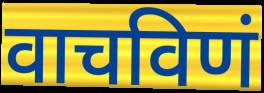
वाचविणं